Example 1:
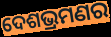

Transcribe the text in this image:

ଦେଶଭ୍ରମଣର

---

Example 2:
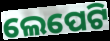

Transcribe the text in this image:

ଲେପେଟି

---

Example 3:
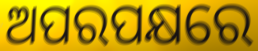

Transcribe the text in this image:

ଅପରପକ୍ଷରେ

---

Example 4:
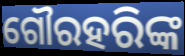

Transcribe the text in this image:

ଗୌରହରିଙ୍କ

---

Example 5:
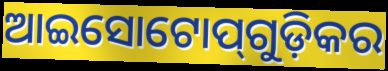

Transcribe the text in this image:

ଆଇସୋଟୋପ୍‌ଗୁଡ଼ିକର